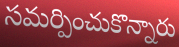
సమర్పించుకొన్నారు